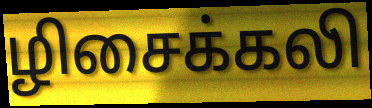
ழிசைக்கலி